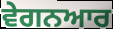
ਵੇਗਨਆਰ